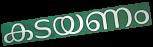
കടയണം